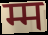
म्म